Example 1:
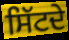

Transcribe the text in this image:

ਸਿੱਟਦੇ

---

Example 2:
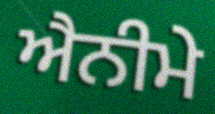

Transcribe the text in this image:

ਐਨੀਮੇ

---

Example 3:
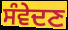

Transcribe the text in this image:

ਸੰਵੇਦਣ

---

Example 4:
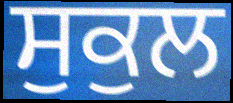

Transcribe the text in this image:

ਸੁਕੁਲ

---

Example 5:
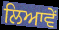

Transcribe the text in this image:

ਲਿਆਵੇਂ